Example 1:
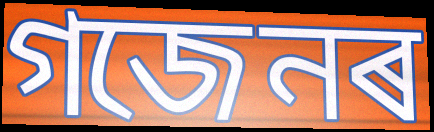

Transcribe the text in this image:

গজেনৰ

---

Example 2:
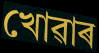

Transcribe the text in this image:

খোৱাৰ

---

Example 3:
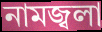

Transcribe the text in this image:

নামজ্বলা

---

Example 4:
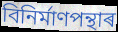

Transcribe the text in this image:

বিনিৰ্মাণপন্থাৰ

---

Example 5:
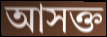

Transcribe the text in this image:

আসক্ত